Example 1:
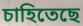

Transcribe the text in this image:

চাহিতেছে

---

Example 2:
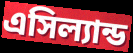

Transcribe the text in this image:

এসিল্যান্ড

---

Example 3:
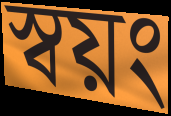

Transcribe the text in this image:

স্বয়ং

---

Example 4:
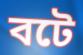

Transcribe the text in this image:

বটে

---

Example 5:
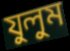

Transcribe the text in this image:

যুলুম